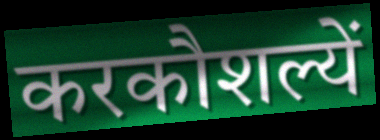
करकौशल्यें